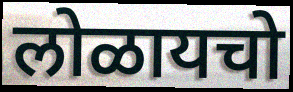
लोळायचो